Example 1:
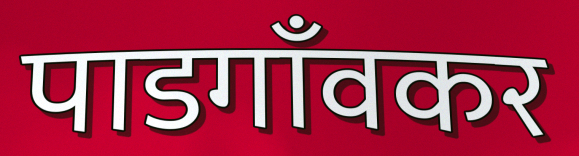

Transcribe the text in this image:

पाडगाँवकर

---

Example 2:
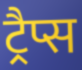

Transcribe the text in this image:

ट्रैप्स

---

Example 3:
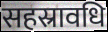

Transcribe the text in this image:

सहस्रावधि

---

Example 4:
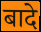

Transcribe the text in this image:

बादे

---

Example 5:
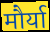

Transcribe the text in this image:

मौर्या